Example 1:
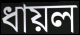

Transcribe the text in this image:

ধায়ল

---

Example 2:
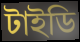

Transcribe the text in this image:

টাইডি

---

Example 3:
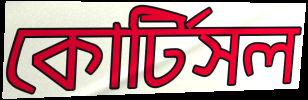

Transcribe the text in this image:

কোর্টিসল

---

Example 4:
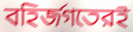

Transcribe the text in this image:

বহির্জগতেরই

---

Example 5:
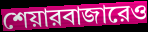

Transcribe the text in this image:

শেয়ারবাজারেও